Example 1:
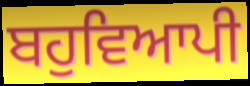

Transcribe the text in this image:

ਬਹੁਵਿਆਪੀ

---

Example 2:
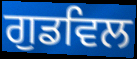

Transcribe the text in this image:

ਗੁਡਵਿਲ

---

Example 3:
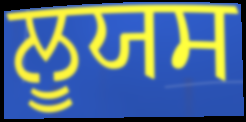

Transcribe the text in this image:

ਲੂਯਸ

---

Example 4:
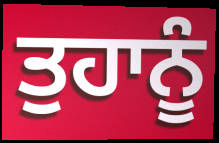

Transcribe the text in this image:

ਤੁਹਾਨੂੰ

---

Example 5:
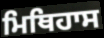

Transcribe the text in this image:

ਮਿਥਿਹਾਸ